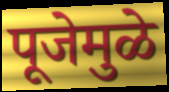
पूजेमुळे